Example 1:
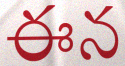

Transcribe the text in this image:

ఈన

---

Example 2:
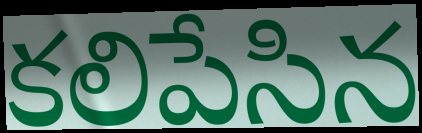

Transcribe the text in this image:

కలిపేసిన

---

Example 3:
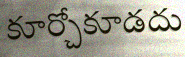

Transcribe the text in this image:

కూర్చోకూడదు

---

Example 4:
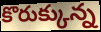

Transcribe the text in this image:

కొరుక్కున్న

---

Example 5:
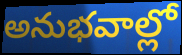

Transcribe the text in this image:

అనుభవాల్లో